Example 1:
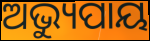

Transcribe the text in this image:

ଅଭ୍ୟୁପାୟ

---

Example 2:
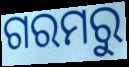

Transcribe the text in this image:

ଗରମରୁ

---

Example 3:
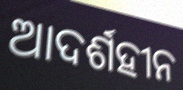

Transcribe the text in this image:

ଆଦର୍ଶହୀନ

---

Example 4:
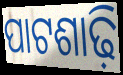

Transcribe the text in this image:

ପାଟଶାଢ଼ି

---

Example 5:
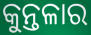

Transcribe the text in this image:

କୁନ୍ତଳାର